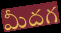
మీదగ